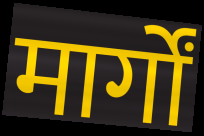
मार्गों